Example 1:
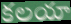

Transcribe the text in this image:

కలయా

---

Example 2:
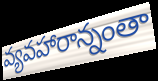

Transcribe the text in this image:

వ్యవహారాన్నంతా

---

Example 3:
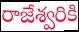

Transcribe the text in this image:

రాజేశ్వరికి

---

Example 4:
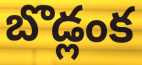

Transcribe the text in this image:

బొడ్లంక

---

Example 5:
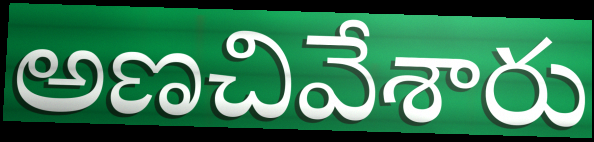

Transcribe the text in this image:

అణచివేశారు